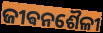
ଜୀଵନଶୈଳୀ